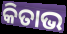
କିତାଭ